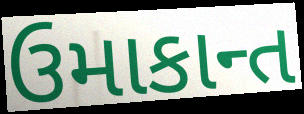
ઉમાકાન્ત